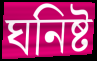
ঘনিষ্ট